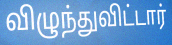
விழுந்துவிட்டார்